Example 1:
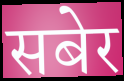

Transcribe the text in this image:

सबेर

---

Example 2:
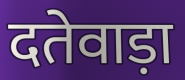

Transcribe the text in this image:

दतेवाड़ा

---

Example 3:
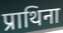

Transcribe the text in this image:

प्राथिना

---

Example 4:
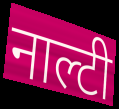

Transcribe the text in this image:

नाल्टी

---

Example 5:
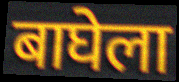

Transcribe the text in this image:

बाघेला